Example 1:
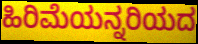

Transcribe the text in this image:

ಹಿರಿಮೆಯನ್ನರಿಯದ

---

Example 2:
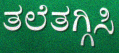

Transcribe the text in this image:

ತಲೆತಗ್ಗಿಸಿ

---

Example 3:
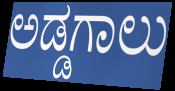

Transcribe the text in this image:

ಅಡ್ಡಗಾಲು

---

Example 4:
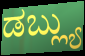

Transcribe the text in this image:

ಡಬ್ಲ್ಯು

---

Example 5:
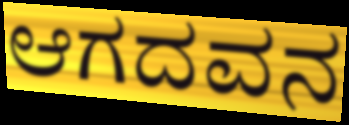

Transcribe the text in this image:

ಆಗದವನ